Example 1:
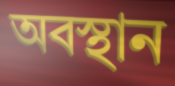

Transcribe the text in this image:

অবস্থান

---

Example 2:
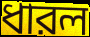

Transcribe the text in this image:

ধারল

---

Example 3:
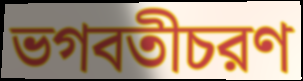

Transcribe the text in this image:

ভগবতীচরণ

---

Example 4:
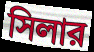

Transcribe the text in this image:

সিলার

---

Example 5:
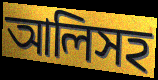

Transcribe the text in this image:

আলিসহ